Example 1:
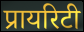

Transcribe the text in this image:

प्रायरिटी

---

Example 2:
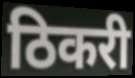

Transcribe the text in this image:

ठिकरी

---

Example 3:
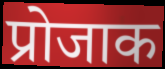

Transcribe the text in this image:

प्रोजाक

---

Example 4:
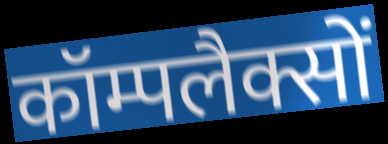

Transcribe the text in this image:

कॉम्पलैक्सों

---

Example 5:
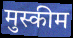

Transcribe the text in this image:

मुस्कीम